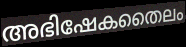
അഭിഷേകതൈലം